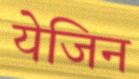
येजिन